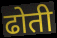
ढोती